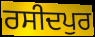
ਰਸੀਦਪੁਰ